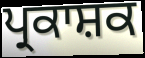
ਪ੍ਰਕਾਸ਼ਕ